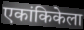
एकांकिकेला